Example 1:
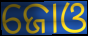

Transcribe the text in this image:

ଜୋଓ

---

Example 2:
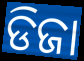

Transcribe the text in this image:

ଡିଜା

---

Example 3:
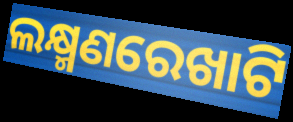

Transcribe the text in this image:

ଲକ୍ଷ୍ମଣରେଖାଟି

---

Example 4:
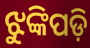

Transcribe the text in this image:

ଝୁଙ୍କିପଡ଼ି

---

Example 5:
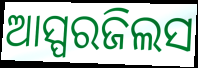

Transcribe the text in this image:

ଆସ୍ପରଜିଲସ